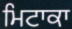
ਮਿਟਾਕਾ